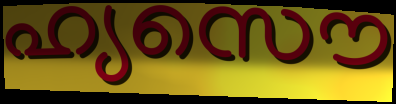
ഹ്യസൌ